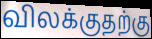
விலக்குதற்கு